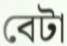
বেটা